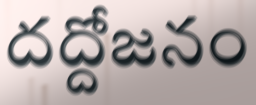
దద్దోజనం